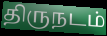
திருநடம்